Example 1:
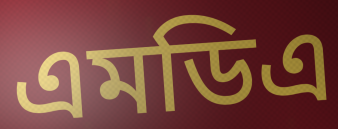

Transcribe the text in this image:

এমডিএ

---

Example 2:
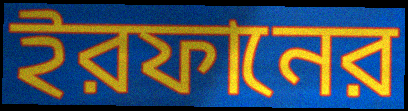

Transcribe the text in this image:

ইরফানের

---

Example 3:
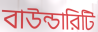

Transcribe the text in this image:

বাউন্ডারিটি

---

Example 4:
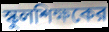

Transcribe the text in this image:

স্কুলশিক্ষকের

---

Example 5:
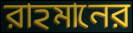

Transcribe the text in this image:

রাহমানের